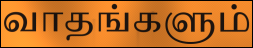
வாதங்களும்